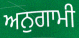
ਅਨੁਗਾਮੀ